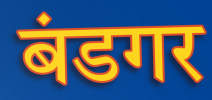
बंडगर